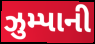
ઝુમ્પાની